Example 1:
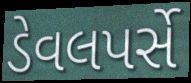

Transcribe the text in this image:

ડેવલપર્સે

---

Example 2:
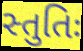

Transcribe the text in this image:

સ્તુતિઃ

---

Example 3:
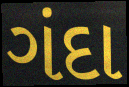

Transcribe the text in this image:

ગંદા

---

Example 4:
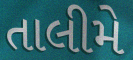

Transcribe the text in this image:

તાલીમે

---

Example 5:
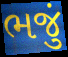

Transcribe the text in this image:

ભજું